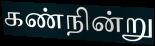
கண்நின்று